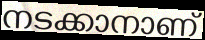
നടക്കാനാണ്